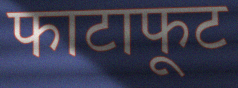
फाटाफूट